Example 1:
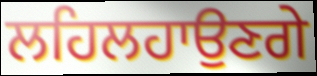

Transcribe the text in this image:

ਲਹਿਲਹਾਉਣਗੇ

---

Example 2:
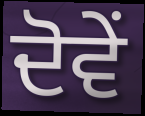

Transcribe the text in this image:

ਦੋਵੇੰ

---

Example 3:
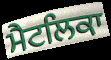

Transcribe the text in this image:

ਮੈਟਲਿਕਾ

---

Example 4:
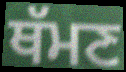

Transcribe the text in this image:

ਥੱਮਣ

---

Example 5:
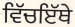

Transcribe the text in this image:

ਵਿੱਚਇੱਥੇ